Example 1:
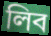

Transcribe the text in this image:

লিব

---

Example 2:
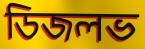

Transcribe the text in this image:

ডিজলভ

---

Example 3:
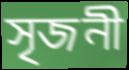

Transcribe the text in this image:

সৃজনী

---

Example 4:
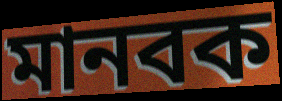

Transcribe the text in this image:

মানবক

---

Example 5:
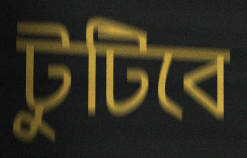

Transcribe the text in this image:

টুটিবে